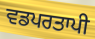
ਵਡਪਰਤਾਪੀ